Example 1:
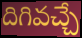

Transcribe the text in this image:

దిగివచ్చే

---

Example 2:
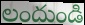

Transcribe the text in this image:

లందుండి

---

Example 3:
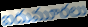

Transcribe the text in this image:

ఐదుమూరలు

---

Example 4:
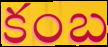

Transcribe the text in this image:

కంబ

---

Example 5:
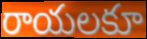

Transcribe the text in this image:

రాయలకూ